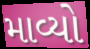
માવ્યો